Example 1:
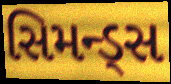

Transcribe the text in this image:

સિમન્ડ્સ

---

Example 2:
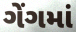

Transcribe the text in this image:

ગેંગમાં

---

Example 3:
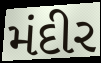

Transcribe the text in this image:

મંદીર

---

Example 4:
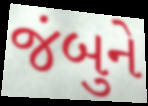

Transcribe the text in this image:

જંબુને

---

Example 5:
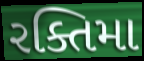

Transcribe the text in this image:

રક્તિમા